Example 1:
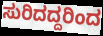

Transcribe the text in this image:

ಸುರಿದದ್ದರಿಂದ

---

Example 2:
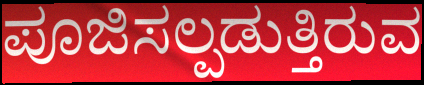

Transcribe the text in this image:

ಪೂಜಿಸಲ್ಪಡುತ್ತಿರುವ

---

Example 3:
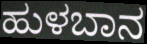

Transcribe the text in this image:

ಹುಳಬಾನ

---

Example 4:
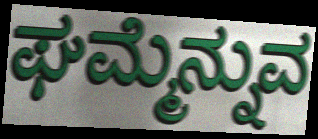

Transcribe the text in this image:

ಘಮ್ಮೆನ್ನುವ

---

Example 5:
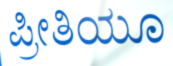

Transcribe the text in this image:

ಪ್ರೀತಿಯೂ